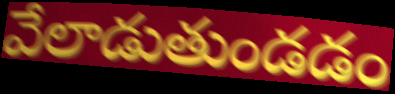
వేలాడుతుండడం